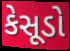
કેસૂડો